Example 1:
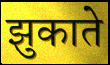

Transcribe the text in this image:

झुकाते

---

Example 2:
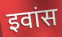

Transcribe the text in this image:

इवांस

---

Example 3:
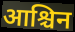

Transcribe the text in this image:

आश्चिन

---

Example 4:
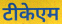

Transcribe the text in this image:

टीकेएम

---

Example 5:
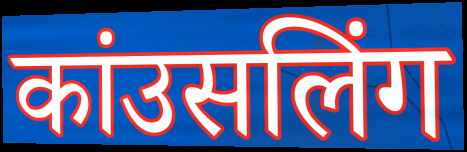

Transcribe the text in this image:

कांउसलिंग